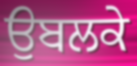
ਉਬਲਕੇ